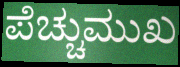
ಪೆಚ್ಚುಮುಖ